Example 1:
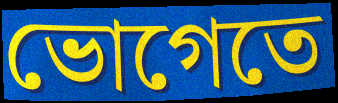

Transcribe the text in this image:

ভোগেতে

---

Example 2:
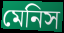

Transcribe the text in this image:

মেনিস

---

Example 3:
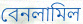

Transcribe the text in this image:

বেনলামিল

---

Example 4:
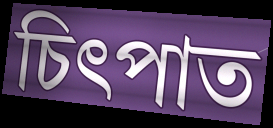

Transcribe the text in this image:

চিৎপাত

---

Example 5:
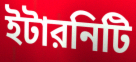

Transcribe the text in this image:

ইটারনিটি